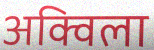
अक्विला